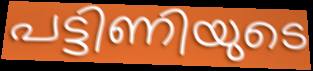
പട്ടിണിയുടെ